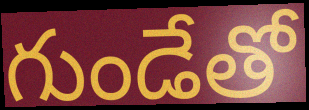
గుండేతో